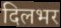
दिलभर